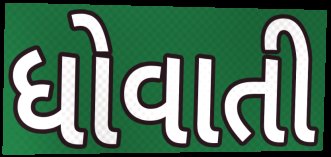
ધોવાતી